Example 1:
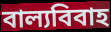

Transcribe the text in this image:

বাল্যবিবাহ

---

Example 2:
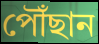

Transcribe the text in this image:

পৌঁছান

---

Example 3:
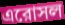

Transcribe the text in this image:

এরোসল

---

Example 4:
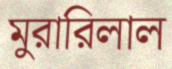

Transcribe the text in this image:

মুরারিলাল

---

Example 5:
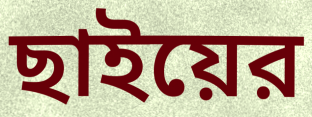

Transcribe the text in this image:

ছাইয়ের